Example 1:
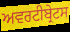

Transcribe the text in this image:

ਅਵਰਟੀਬ੍ਰੇਟਸ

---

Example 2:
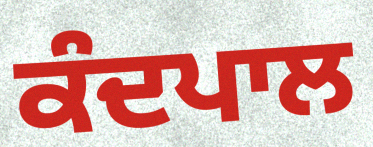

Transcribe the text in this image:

ਕੰਦਪਾਲ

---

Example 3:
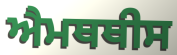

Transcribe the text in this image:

ਐਮਥਥੀਸ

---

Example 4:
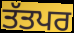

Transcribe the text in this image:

ਤੱਤਪਰ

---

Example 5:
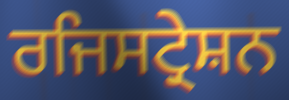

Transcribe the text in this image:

ਰਜਿਸਟ੍ਰੇਸ਼ਨ